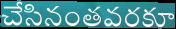
చేసినంతవరకూ